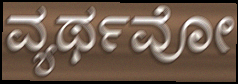
ವ್ಯರ್ಥವೋ